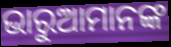
ଭାରୁଆମାନଙ୍କ